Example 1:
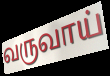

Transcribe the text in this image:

வருவாய்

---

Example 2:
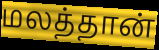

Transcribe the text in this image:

மலத்தான்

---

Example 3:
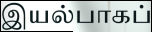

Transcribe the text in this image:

இயல்பாகப்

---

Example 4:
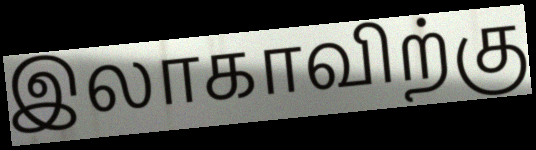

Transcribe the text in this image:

இலாகாவிற்கு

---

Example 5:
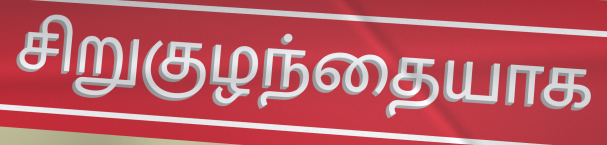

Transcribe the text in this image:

சிறுகுழந்தையாக